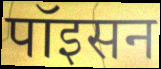
पॉइसन